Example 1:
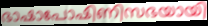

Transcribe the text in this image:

ഭാഷാപോഷിണിസഭയായി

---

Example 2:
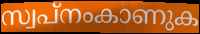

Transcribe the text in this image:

സ്വപ്നംകാണുക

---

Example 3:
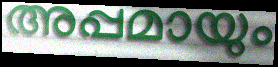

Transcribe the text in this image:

അപ്പമായും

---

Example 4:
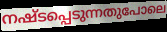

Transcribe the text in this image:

നഷ്ടപ്പെടുന്നതുപോലെ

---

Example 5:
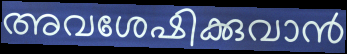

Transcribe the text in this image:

അവശേഷിക്കുവാൻ